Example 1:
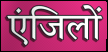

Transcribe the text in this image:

एंजिलों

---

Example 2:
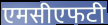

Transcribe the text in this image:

एमसीएफटी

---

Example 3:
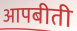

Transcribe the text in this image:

आपबीती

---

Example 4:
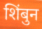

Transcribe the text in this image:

शिंबुन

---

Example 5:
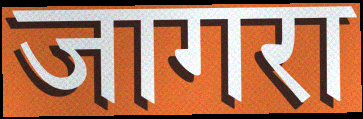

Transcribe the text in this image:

जागरा